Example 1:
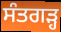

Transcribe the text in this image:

ਸੰਤਗੜ੍ਹ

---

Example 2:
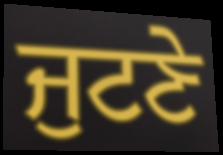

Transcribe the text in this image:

ਜੁਟਣੇ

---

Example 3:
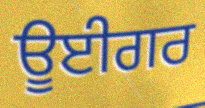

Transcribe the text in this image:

ਊਈਗਰ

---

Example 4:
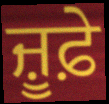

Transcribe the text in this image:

ਜ਼ੂਫ਼ੇ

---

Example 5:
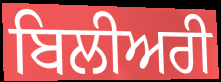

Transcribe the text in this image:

ਬਿਲੀਅਰੀ